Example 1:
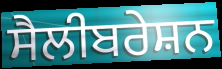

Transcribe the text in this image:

ਸੈਲੀਬਰੇਸ਼ਨ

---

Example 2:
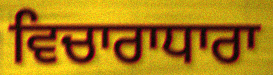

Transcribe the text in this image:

ਵਿਚਾਰਾਧਾਰਾ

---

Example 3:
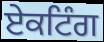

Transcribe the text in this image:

ਏਕਟਿੰਗ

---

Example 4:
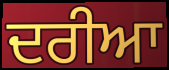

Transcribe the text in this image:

ਦਰੀਆ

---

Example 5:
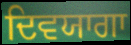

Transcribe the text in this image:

ਦਿਵਯਾਗਾ